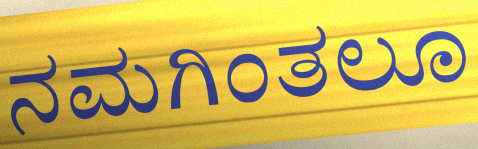
ನಮಗಿಂತಲೂ